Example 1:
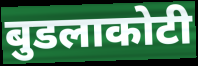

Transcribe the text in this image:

बुडलाकोटी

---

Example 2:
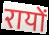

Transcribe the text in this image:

रायों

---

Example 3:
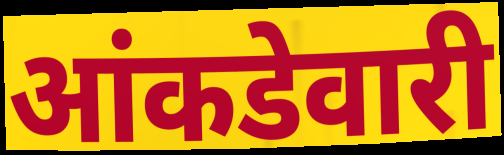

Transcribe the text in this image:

आंकडेवारी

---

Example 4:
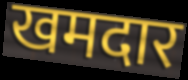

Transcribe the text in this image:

खमदार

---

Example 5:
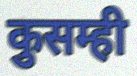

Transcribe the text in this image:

कुसम्ही